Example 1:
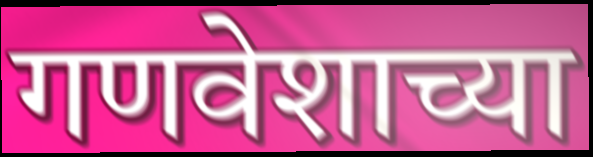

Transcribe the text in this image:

गणवेशाच्या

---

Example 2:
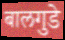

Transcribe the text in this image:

बालगुडे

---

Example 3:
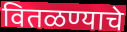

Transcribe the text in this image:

वितळण्याचे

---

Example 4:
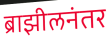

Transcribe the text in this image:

ब्राझीलनंतर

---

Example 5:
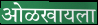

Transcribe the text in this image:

ओळखायला